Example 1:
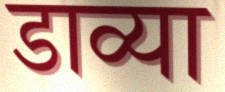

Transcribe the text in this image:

डाव्या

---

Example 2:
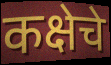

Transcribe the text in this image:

कक्षेचे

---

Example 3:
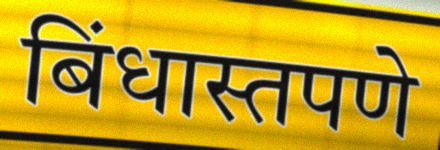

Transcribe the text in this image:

बिंधास्तपणे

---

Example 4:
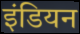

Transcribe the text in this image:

इंडियन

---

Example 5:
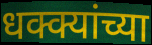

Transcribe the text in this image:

धक्क्यांच्या